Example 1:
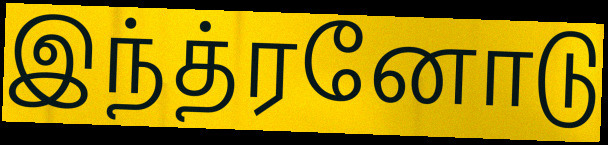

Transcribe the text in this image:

இந்த்ரனோடு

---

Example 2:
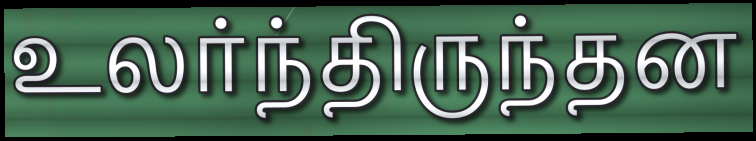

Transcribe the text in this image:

உலர்ந்திருந்தன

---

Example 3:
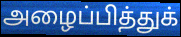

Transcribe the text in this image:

அழைப்பித்துக்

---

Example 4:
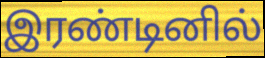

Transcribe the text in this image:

இரண்டினில்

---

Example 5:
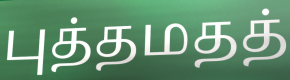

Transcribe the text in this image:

புத்தமதத்